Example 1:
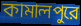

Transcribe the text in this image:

কামালপুরে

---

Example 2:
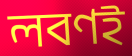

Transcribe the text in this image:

লবণই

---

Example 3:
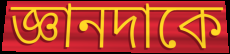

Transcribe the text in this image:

জ্ঞানদাকে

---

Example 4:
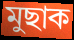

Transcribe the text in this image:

মুছাক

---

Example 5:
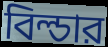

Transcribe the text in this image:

বিল্ডার